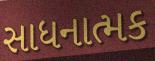
સાધનાત્મક